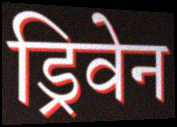
ड्रिवेन